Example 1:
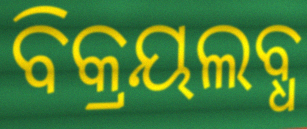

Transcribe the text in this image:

ବିକ୍ରୟଲବ୍ଧ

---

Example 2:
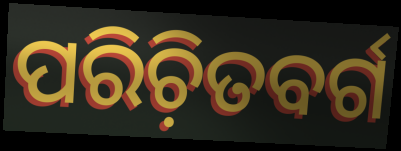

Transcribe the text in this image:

ପରିଚ଼ିତବର୍ଗ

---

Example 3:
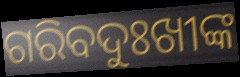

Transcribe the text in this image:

ଗରିବଦୁଃଖୀଙ୍କ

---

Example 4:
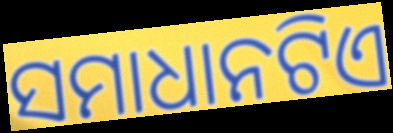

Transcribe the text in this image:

ସମାଧାନଟିଏ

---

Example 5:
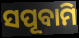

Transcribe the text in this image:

ସପୂବାମି